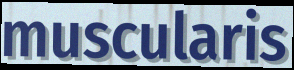
muscularis